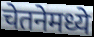
चेतनेमध्ये